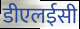
डीएलईसी